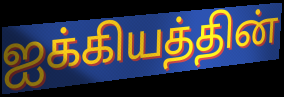
ஐக்கியத்தின்